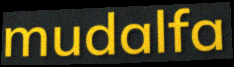
mudalfa